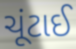
ચૂંટાઈ